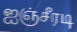
ஐஞ்சீரடி